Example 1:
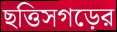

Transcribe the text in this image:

ছত্তিসগড়ের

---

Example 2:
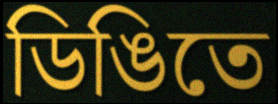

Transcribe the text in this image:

ডিঙিতে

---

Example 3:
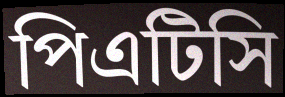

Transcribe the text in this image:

পিএটিসি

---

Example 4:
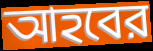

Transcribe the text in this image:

আহবের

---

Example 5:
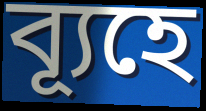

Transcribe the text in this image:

ব্যূহে